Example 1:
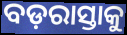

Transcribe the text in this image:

ବଡ଼ରାସ୍ତାକୁ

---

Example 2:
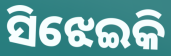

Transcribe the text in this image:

ସିଝେଇକି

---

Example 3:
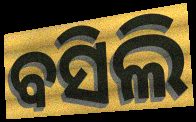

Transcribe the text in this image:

ବସିଲି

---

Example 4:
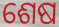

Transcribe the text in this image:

ଶେଷ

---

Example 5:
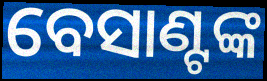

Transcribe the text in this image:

ବେସାଣ୍ଟଙ୍କ